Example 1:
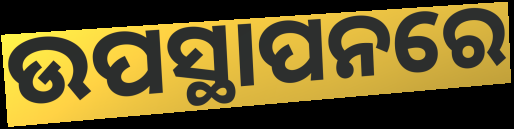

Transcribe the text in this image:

ଉପସ୍ଥାପନରେ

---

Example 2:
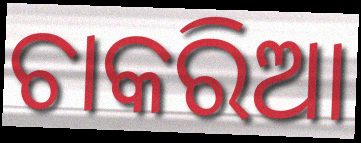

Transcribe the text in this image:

ଚାକରିଆ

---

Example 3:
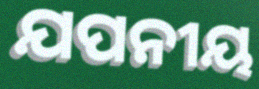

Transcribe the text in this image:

ଯପନୀୟ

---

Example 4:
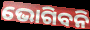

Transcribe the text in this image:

ଭୋଗିବନି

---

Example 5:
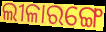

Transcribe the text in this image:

ଲୀଳାରଙ୍ଗେ